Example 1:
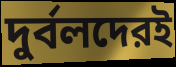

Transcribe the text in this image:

দুর্বলদেরই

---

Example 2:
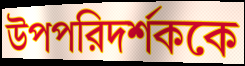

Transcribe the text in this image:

উপপরিদর্শককে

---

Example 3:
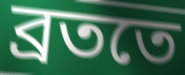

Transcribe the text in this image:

ব্রততে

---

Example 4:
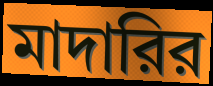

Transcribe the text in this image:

মাদারির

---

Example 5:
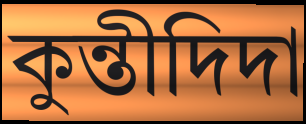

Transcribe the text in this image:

কুন্তীদিদা